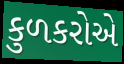
કુળકરોએ